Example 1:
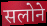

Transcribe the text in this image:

सलोने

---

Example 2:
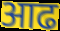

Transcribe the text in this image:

आढ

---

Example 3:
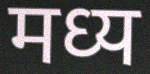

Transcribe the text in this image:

मध्‍य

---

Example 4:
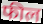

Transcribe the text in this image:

फील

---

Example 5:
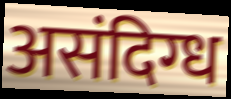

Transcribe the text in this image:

असंदिग्ध